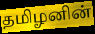
தமிழனின்